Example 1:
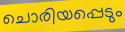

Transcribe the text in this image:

ചൊരിയപ്പെടും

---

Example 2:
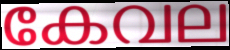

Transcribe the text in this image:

കേവല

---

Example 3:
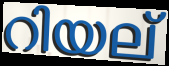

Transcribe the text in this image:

റിയല്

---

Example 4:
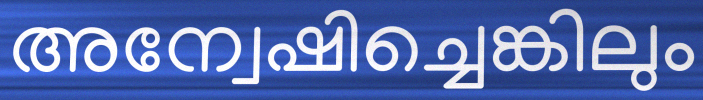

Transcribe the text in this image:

അന്വേഷിച്ചെങ്കിലും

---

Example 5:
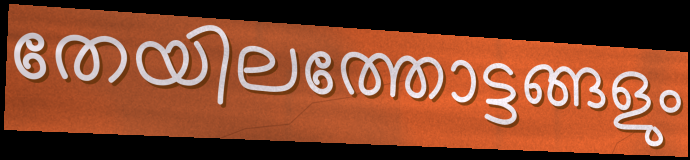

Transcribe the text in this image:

തേയിലത്തോട്ടങ്ങളും